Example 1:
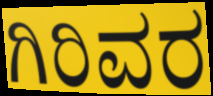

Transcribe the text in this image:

ಗಿರಿವರ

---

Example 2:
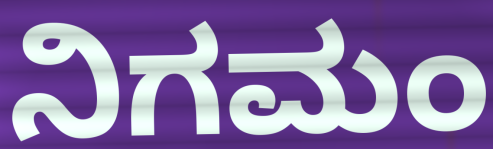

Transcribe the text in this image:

ನಿಗಮಂ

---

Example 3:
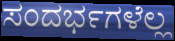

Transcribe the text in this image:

ಸಂದರ್ಭಗಳೆಲ್ಲ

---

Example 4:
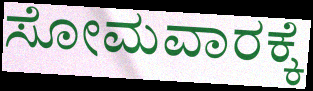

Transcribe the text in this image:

ಸೋಮವಾರಕ್ಕೆ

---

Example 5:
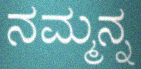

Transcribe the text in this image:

ನಮ್ಮನ್ನ